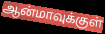
ஆன்மாவுக்குள்